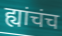
ह्यांचंच